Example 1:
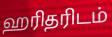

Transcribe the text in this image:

ஹரிதரிடம்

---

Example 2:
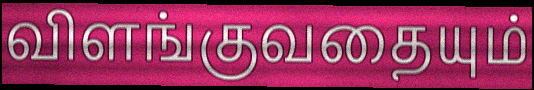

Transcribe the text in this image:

விளங்குவதையும்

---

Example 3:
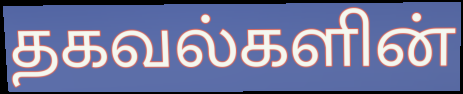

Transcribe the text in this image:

தகவல்களின்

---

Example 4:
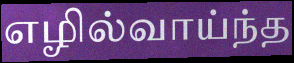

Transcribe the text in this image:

எழில்வாய்ந்த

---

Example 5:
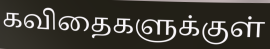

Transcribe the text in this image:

கவிதைகளுக்குள்